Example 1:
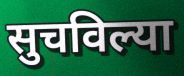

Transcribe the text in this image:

सुचविल्या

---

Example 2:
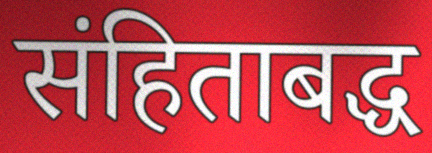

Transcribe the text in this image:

संहिताबद्ध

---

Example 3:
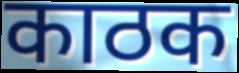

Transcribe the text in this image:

काठक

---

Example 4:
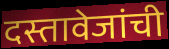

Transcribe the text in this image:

दस्तावेजांची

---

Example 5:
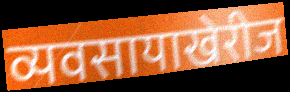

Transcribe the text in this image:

व्यवसायाखेरीज